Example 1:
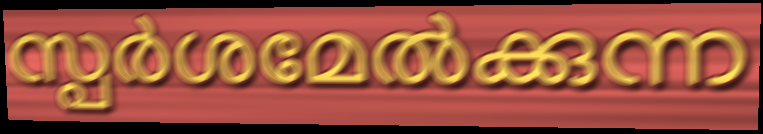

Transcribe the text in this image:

സ്പർശമേൽക്കുന്ന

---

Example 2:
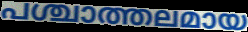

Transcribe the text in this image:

പശ്ചാത്തലമായ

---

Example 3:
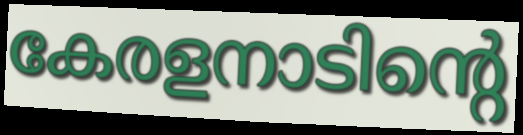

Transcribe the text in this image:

കേരളനാടിന്റെ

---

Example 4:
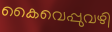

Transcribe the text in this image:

കൈവെപ്പുവഴി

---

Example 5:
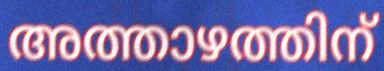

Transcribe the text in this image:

അത്താഴത്തിന്